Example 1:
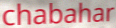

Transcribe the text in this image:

chabahar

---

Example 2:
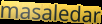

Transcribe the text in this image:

masaledar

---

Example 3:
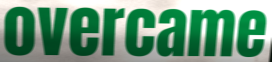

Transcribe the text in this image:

overcame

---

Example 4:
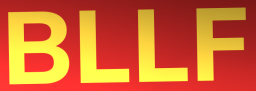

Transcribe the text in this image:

BLLF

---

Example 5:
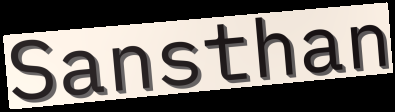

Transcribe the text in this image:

Sansthan